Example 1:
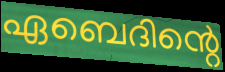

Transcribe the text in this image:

ഏബെദിന്റെ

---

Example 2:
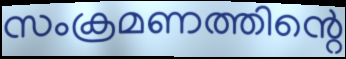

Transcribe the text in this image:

സംക്രമണത്തിന്റെ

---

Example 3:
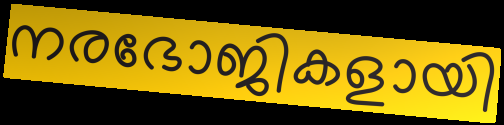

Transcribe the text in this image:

നരഭോജികളായി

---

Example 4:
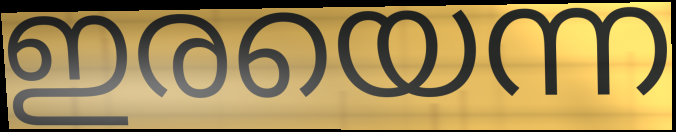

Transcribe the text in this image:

ഇരയെന്ന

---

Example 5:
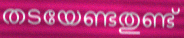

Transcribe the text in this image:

തടയേണ്ടതുണ്ട്